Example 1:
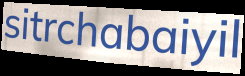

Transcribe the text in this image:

sitrchabaiyil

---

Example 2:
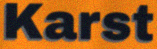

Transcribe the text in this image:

Karst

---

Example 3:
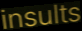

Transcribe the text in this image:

insults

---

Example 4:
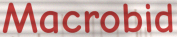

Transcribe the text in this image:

Macrobid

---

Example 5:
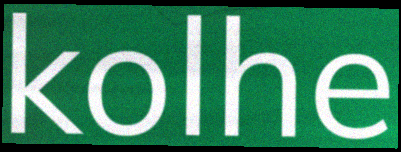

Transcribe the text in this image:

kolhe